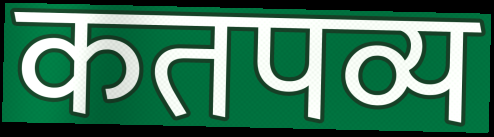
कतपव्य